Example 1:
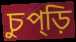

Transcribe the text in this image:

চুপ্‌ড়ি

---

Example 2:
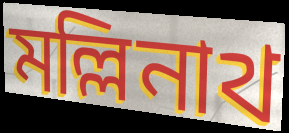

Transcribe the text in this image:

মল্লিনাথ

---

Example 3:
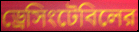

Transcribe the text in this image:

ড্রেসিংটেবিলের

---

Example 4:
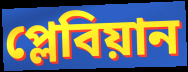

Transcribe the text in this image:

প্লেবিয়ান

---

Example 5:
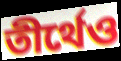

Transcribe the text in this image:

তীর্থেও